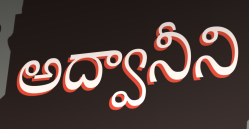
అద్వానీని